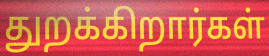
துறக்கிறார்கள்